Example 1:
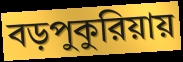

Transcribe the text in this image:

বড়পুকুরিয়ায়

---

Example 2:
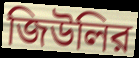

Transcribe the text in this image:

জিউলির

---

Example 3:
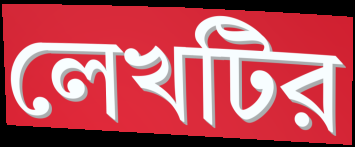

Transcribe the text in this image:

লেখটির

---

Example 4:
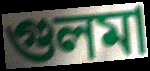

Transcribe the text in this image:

গুলমা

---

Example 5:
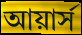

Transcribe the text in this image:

আয়ার্স